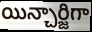
యిన్చార్జిగా